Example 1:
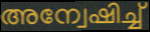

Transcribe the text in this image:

അന്വേഷിച്ച്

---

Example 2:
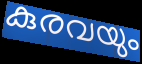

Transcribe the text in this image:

കുരവയും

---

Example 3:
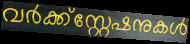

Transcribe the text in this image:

വർക്ക്സ്റ്റേഷനുകൾ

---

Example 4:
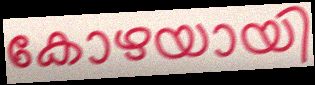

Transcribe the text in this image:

കോഴയായി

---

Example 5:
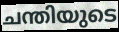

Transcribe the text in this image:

ചന്തിയുടെ